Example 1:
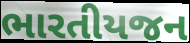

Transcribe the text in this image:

ભારતીયજન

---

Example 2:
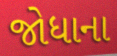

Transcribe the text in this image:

જોધાના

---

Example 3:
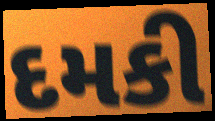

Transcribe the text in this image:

દમકી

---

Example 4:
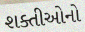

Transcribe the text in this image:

શક્તીઓનો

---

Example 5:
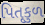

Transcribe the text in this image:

પિતૃકુળ